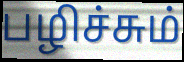
பழிச்சும்